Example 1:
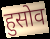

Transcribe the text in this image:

हुसोव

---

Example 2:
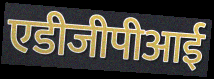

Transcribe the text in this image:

एडीजीपीआई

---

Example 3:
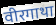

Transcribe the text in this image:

वीरगाथा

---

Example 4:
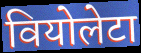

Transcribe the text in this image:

वियोलेटा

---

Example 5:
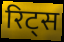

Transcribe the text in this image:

रिट्स